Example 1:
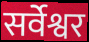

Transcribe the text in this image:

सर्वेश्वर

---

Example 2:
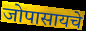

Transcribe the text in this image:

जोपासायचे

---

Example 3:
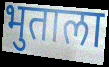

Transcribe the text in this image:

भुताला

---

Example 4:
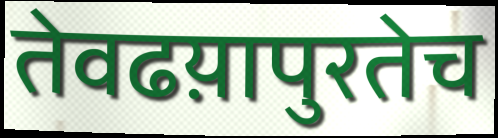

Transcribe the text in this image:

तेवढय़ापुरतेच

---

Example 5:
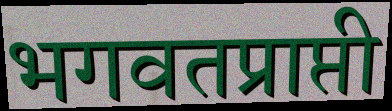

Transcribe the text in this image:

भगवतप्राप्ती